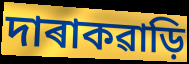
দাৰাকৱাড়ি